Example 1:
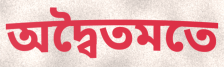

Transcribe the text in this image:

অদ্বৈতমতে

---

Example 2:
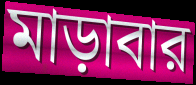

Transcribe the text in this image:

মাড়াবার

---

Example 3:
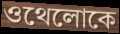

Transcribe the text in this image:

ওথেলোকে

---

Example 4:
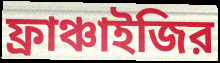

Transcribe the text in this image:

ফ্রাঞ্চাইজির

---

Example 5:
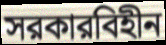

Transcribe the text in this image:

সরকারবিহীন